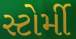
સ્ટોર્મી